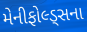
મેનીફોલ્ડ્સના